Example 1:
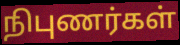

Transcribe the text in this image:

நிபுணர்கள்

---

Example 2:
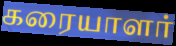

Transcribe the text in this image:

கரையாளர்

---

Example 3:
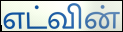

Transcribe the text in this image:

எட்வின்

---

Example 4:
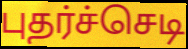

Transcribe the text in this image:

புதர்ச்செடி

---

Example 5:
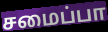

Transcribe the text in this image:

சமைப்பா